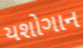
યશોગાન